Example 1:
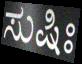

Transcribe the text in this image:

ಸುಷಿಃ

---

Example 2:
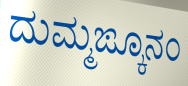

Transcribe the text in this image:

ದುಮ್ಮಙ್ಕೂನಂ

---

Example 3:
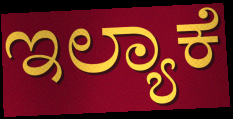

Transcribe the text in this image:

ಇಲ್ಯಾಕೆ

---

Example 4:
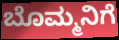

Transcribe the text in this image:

ಬೊಮ್ಮನಿಗೆ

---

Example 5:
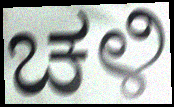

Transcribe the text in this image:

ಚಳಿ